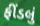
ફીંડલું